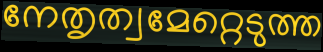
നേതൃത്വമേറ്റെടുത്ത